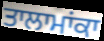
ਤਾਲਾਮਾਂਕਾ